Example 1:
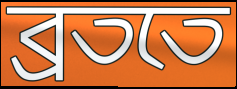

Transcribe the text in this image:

ব্রততে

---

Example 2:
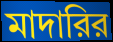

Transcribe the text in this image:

মাদারির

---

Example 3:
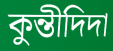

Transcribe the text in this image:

কুন্তীদিদা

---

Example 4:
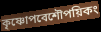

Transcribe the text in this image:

কৃষ্ণোপবেশৌপয়িকং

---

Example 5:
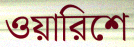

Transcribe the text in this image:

ওয়ারিশে